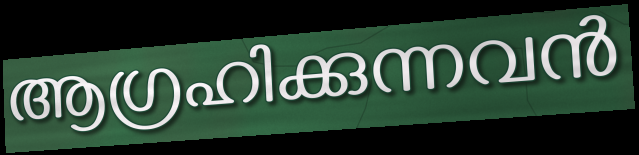
ആഗ്രഹിക്കുന്നവൻ